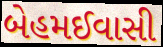
બેહમઈવાસી